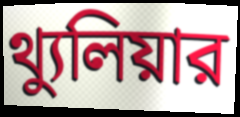
থ্যুলিয়ার